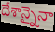
దేశాన్నైనా